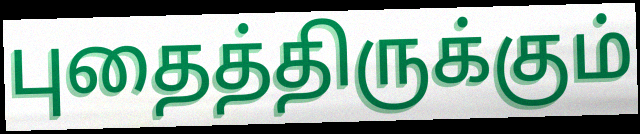
புதைத்திருக்கும்